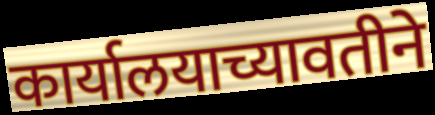
कार्यालयाच्यावतीने